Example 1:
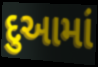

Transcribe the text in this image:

દુઆમાં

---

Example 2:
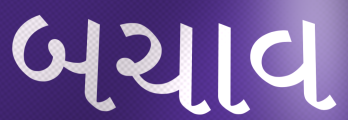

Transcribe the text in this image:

બચાવ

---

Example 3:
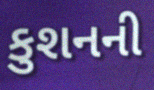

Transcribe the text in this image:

કુશનની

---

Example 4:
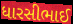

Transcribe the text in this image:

ધારસીભાઈ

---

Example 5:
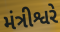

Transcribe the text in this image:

મંત્રીશ્વરે